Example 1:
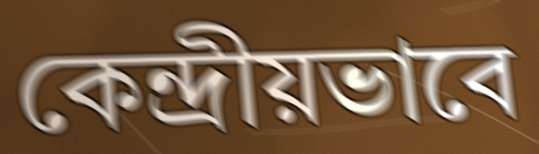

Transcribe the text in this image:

কেন্দ্রীয়ভাবে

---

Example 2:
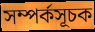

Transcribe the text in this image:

সম্পর্কসূচক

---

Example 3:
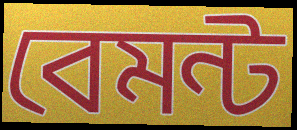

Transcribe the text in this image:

বেমন্ট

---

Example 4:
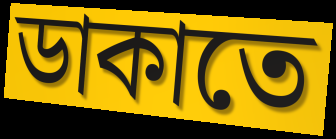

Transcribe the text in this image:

ডাকাতে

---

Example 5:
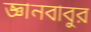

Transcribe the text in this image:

জ্ঞানবাবুর